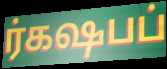
ர்கஷபப்